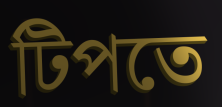
টিপতে